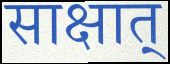
साक्षात्